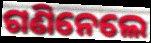
ଗଣିନେଲେ